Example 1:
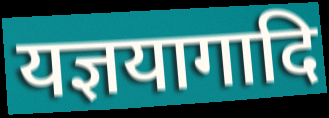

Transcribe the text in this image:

यज्ञयागादि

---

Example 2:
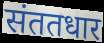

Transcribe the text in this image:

संततधार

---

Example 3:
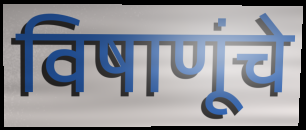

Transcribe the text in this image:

विषाणूंचे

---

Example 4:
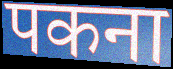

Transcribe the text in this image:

पकना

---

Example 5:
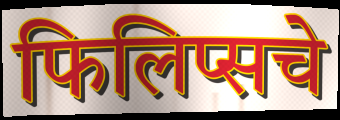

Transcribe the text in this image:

फिलिप्सचे